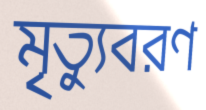
মৃত্যুবরণ